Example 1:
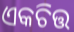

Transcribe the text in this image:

ଏକଚିତ୍ତ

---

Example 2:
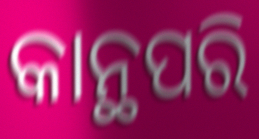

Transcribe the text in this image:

କାନ୍ଥପରି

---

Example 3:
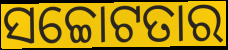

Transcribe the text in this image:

ସଚ୍ଚୋଟତାର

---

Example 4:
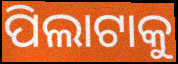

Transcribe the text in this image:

ପିଲାଟାକୁ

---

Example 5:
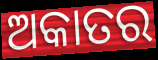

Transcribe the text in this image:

ଅକାତର